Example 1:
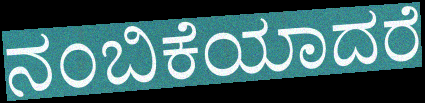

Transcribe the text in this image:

ನಂಬಿಕೆಯಾದರೆ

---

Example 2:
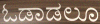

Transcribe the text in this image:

ಓಡಾಡಲೂ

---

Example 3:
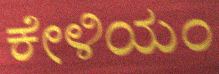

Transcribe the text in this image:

ಕೇಳಿಯಂ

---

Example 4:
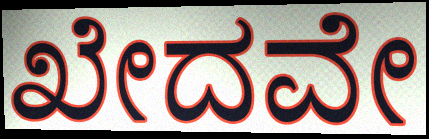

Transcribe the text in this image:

ಖೇದವೇ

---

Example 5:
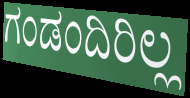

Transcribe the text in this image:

ಗಂಡಂದಿರಿಲ್ಲ